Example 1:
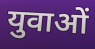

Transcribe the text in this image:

युवाओं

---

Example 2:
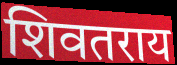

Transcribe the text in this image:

शिवतराय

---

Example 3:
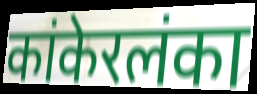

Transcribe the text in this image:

कांकेरलंका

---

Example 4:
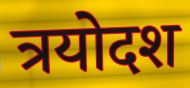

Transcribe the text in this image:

त्रयोदश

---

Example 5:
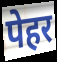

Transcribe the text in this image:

पेहर